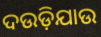
ଦଉଡ଼ିଯାଉ